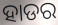
ହାଡର